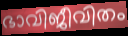
ഭാവിജീവിതം